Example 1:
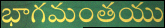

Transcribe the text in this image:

భాగమంతయు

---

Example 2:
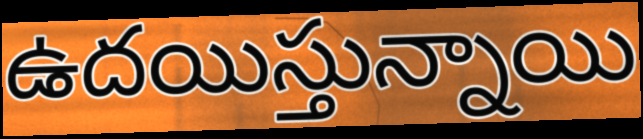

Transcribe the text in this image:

ఉదయిస్తున్నాయి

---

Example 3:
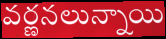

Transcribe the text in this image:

వర్ణనలున్నాయి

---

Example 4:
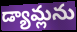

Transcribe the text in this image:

డ్యామ్లను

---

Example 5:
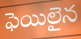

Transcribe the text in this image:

ఫెయిలైన